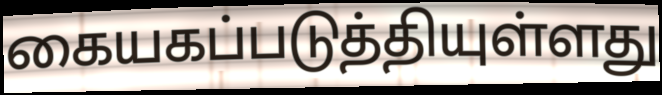
கையகப்படுத்தியுள்ளது